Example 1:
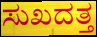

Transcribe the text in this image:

ಸುಖದತ್ತ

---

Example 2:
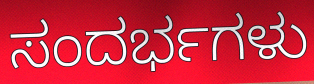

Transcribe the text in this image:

ಸಂದರ್ಭಗಳು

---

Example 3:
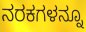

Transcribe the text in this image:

ನರಕಗಳನ್ನೂ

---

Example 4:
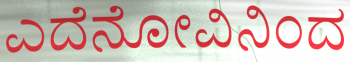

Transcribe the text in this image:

ಎದೆನೋವಿನಿಂದ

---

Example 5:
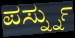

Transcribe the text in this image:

ಪರ್ಸ್ನ್ನು